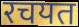
रचयत